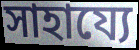
সাহায্যে